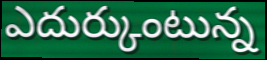
ఎదుర్కుంటున్న